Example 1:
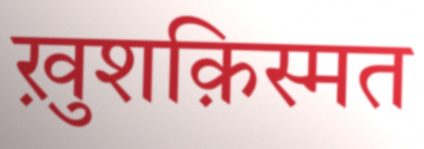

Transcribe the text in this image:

ख़ुशक़िस्मत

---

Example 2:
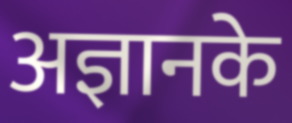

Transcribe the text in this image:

अज्ञानके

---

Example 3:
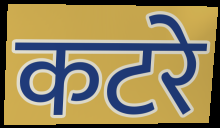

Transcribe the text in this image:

कटरे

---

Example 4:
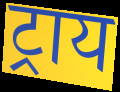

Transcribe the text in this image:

ट्राय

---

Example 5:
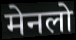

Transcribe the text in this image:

मेनलो